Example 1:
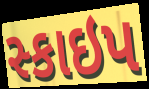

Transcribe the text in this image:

સ્કાઇપ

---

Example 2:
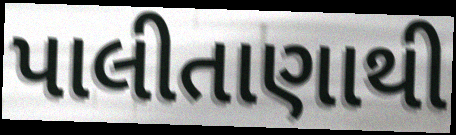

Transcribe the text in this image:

પાલીતાણાથી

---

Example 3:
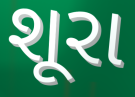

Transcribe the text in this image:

શૂરા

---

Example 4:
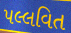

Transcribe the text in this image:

પલ્લવિત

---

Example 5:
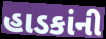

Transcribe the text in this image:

હાડકાંની